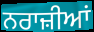
ਨਰਾਜ਼ੀਆਂ